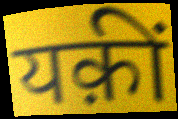
यक़ीं